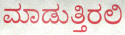
ಮಾಡುತ್ತಿರಲಿ